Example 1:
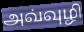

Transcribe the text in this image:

அவ்வுழி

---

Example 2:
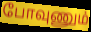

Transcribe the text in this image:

போவுணும்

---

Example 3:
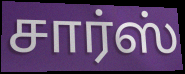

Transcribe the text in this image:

சார்ஸ்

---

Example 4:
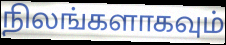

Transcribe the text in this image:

நிலங்களாகவும்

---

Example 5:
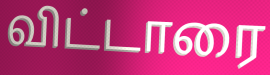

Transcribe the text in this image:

விட்டாரை